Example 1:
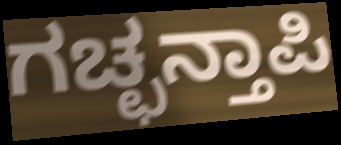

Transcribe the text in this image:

ಗಚ್ಛನ್ತಾಪಿ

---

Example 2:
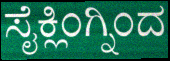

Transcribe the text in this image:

ಸೈಕ್ಲಿಂಗ್ನಿಂದ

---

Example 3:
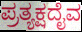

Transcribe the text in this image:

ಪ್ರತ್ಯಕ್ಷದೈವ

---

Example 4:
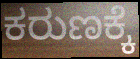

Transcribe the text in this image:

ಕರುಣಕ್ಕೆ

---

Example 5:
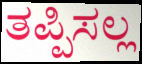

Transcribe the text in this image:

ತಪ್ಪಿಸಲ್ಲ